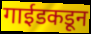
गाईडकडून